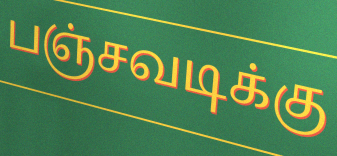
பஞ்சவடிக்கு